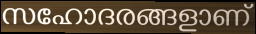
സഹോദരങ്ങളാണ്